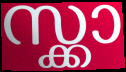
സ്ക്കാ